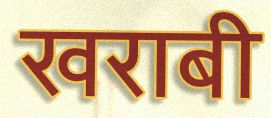
खराबी